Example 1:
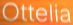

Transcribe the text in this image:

Ottelia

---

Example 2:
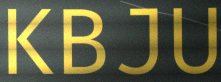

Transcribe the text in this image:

KBJU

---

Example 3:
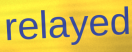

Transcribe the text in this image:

relayed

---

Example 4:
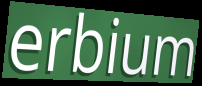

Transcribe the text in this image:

erbium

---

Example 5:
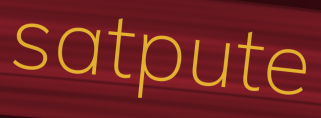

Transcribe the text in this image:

satpute